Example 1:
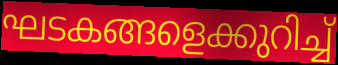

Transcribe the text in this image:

ഘടകങ്ങളെക്കുറിച്ച്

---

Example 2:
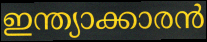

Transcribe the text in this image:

ഇന്ത്യാക്കാരൻ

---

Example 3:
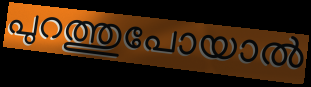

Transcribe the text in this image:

പുറത്തുപോയാൽ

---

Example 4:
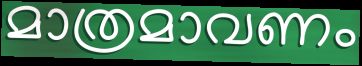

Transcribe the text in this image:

മാത്രമാവണം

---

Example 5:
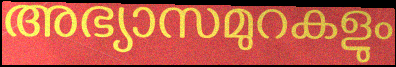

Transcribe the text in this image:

അഭ്യാസമുറകളും